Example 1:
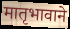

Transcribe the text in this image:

मातृभावाने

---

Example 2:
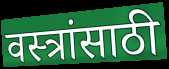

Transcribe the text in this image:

वस्त्रांसाठी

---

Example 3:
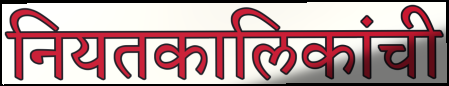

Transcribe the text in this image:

नियतकालिकांची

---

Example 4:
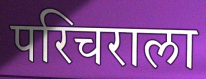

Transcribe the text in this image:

परिचराला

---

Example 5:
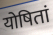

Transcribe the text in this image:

योषितां